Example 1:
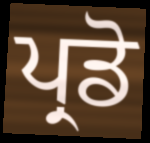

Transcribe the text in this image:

ਪ੍ਰਡੋ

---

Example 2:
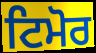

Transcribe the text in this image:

ਟਿਮੋਰ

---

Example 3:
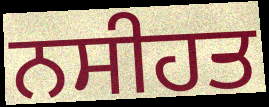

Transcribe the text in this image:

ਨਸੀਹਤ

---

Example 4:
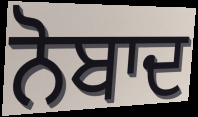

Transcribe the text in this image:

ਨੋਬਾਦ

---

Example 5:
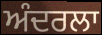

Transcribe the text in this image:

ਅੰਦਰਲਾ